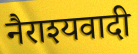
नैराश्यवादी